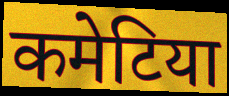
कमेटिया